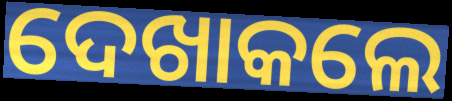
ଦେଖାକଲେ